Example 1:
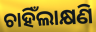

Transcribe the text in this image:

ଚାହିଁଲାକ୍ଷଣି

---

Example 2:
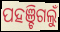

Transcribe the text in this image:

ପହଞ୍ଚିଗଲୁଁ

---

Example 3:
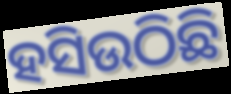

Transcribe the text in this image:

ହସିଉଠିଛି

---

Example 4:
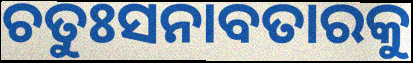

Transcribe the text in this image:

ଚତୁଃସନାବତାରକୁ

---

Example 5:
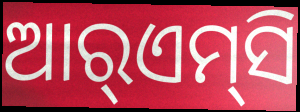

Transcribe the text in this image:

ଆର୍‌ଏମ୍‌ସି